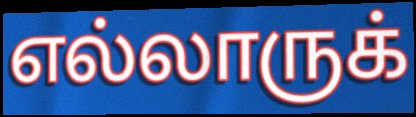
எல்லாருக்